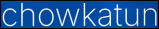
chowkatun